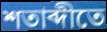
শতাব্দীতে